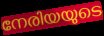
നേരിയയുടെ